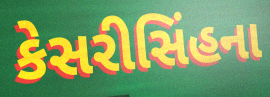
કેસરીસિંહના